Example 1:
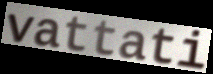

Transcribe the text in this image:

vattati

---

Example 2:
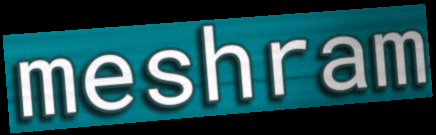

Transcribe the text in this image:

meshram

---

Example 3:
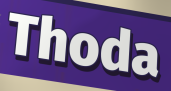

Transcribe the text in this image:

Thoda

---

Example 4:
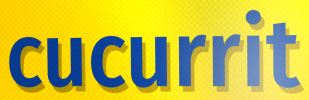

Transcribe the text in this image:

cucurrit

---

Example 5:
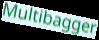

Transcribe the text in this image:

Multibagger